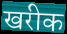
खरीक